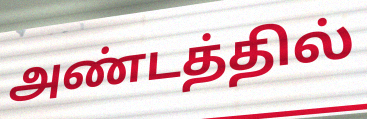
அண்டத்தில்